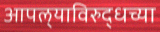
आपल्याविरुद्धच्या